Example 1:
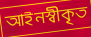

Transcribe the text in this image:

আইনস্বীকৃত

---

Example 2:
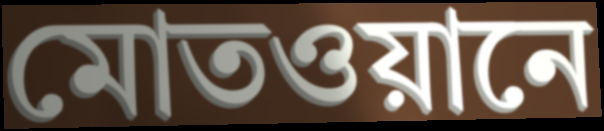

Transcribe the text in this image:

মোতওয়ানে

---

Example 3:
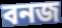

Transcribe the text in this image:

বনজ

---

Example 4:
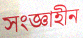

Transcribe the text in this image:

সংজ্ঞাহীন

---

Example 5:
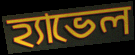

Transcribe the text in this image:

হ্যাভেল